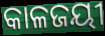
କାଳଜୟୀ